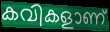
കവികളാണ്